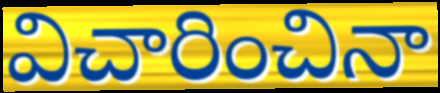
విచారించినా